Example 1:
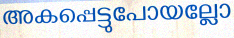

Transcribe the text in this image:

അകപ്പെട്ടുപോയല്ലോ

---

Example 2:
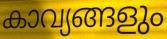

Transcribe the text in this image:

കാവ്യങ്ങളും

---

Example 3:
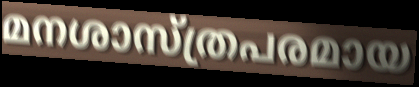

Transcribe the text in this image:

മനശാസ്ത്രപരമായ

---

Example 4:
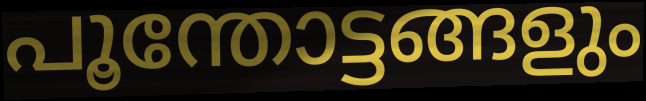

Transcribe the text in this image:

പൂന്തോട്ടങ്ങളും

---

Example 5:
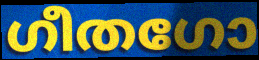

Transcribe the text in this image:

ഗീതഗോ